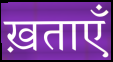
ख़ताएँ